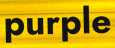
purple